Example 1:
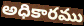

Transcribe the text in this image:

అధికారము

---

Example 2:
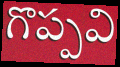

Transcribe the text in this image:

గొప్పవి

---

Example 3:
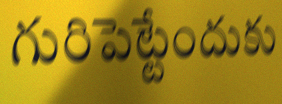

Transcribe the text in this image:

గురిపెట్టేందుకు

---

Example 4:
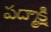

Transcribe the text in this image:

పద్మాక్షి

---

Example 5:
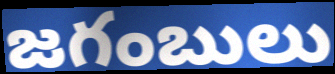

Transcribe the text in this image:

జగంబులు